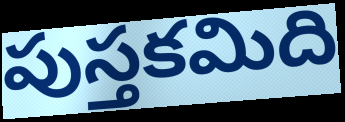
పుస్తకమిది